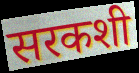
सरकशी